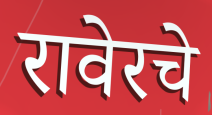
रावेरचे